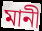
মানী